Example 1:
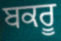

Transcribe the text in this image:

ਬਕਰੂ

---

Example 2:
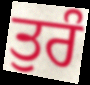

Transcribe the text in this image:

ਤੁਰੰ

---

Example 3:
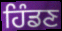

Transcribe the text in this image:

ਹਿੰਡਣ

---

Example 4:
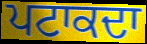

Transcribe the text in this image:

ਪਟਾਕਦਾ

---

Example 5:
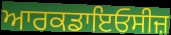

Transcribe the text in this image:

ਆਰਕਡਾਇਓਸੀਜ਼